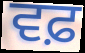
ਵਫ਼